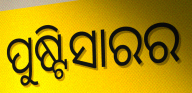
ପୁଷ୍ଟିସାରର